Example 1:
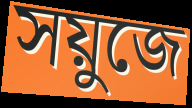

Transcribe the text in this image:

সয়ুজে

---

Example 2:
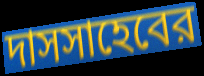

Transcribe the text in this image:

দাসসাহেবের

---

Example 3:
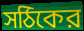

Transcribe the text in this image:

সঠিকের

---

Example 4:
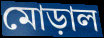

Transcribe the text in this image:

মোড়াল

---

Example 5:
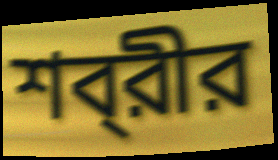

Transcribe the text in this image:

শব্‌রীর